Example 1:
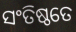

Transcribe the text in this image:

ସଂତିଷ୍ଠତେ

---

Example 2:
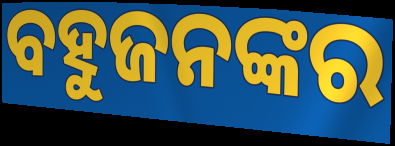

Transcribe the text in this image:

ବହୁଜନଙ୍କର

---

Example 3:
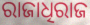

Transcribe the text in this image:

ରାଜାଧିରାଜ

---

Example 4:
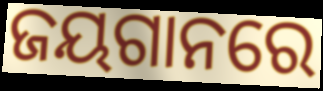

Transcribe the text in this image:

ଜୟଗାନରେ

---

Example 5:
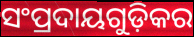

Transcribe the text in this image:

ସଂପ୍ରଦାୟଗୁଡ଼ିକର